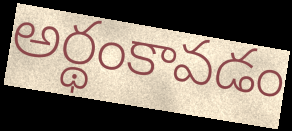
అర్థంకావడం